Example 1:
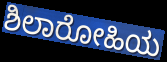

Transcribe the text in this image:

ಶಿಲಾರೋಹಿಯ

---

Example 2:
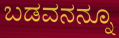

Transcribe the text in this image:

ಬಡವನನ್ನೂ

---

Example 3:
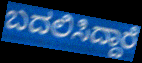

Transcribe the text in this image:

ಬದಲಿಸಿದ್ದಾರೆ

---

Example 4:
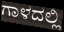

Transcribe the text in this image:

ಗಾಳದಲ್ಲಿ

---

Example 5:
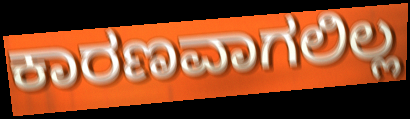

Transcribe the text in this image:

ಕಾರಣವಾಗಲಿಲ್ಲ